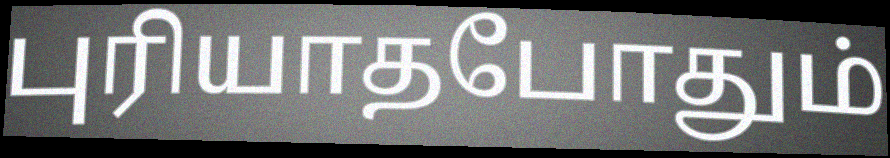
புரியாதபோதும்